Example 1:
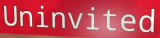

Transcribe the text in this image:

Uninvited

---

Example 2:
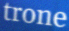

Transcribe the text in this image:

trone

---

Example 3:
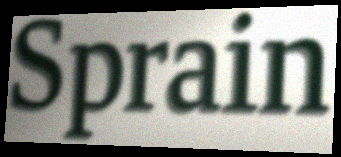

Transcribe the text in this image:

Sprain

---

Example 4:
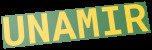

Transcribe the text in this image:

UNAMIR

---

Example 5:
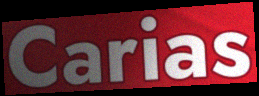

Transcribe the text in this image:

Carias